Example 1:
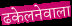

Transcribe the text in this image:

ढकेलनेवाला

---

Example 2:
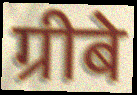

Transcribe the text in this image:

ग्रीबे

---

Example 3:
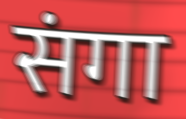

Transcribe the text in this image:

संगा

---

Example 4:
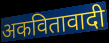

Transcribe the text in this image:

अकवितावादी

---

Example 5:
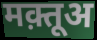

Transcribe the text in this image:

मक़्तूअ